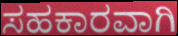
ಸಹಕಾರವಾಗಿ